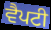
ਵੈਪਟੀ